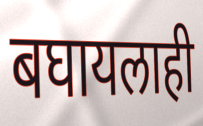
बघायलाही